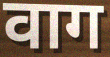
वाग